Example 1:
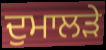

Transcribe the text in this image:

ਦੁਮਾਲੜੇ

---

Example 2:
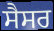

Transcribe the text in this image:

ਸੈਸਰ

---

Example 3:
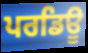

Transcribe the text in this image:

ਪਰਡਿਊ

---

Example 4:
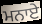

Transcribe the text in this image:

ਮਨਾਏ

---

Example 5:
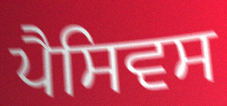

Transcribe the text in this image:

ਪੈਸਿਵਸ